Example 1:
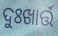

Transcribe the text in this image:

ଦୁଃଖାର୍ତ୍ତ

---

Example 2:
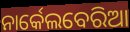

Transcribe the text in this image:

ନାର୍କେଲବେରିଆ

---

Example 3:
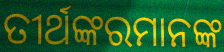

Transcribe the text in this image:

ତୀର୍ଥଙ୍କରମାନଙ୍କ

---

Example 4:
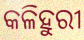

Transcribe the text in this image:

କଳିହୁରୀ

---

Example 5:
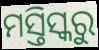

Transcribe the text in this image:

ମସ୍ତିସ୍କରୁ